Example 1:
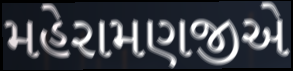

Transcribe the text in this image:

મહેરામણજીએ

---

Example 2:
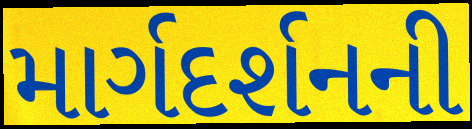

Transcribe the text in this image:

માર્ગદર્શનની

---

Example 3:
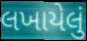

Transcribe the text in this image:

લખાયેલું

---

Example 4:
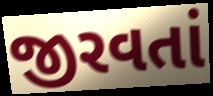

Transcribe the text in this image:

જીરવતાં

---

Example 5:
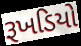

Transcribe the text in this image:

રૂખડિયો